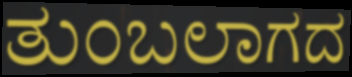
ತುಂಬಲಾಗದ